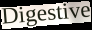
Digestive